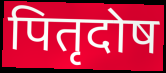
पितृदोष